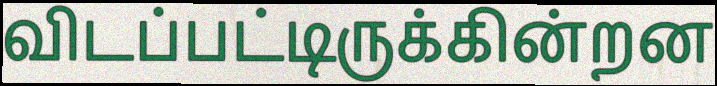
விடப்பட்டிருக்கின்றன